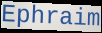
Ephraim